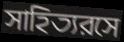
সাহিত্যরসে